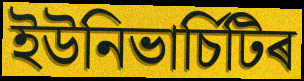
ইউনিভাৰ্চিটিৰ